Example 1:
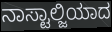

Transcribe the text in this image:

ನಾಸ್ಟಾಲ್ಜಿಯಾದ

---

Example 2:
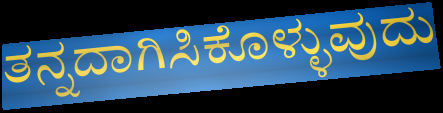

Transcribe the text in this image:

ತನ್ನದಾಗಿಸಿಕೊಳ್ಳುವುದು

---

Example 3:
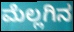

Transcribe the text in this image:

ಮೆಲ್ಲಗಿನ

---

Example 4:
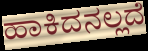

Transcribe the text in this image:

ಹಾಕಿದನಲ್ಲದೆ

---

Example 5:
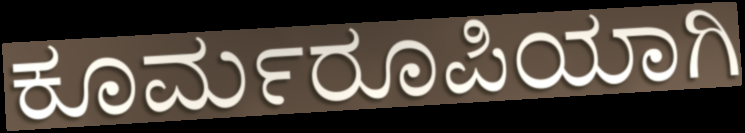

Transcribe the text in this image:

ಕೂರ್ಮರೂಪಿಯಾಗಿ